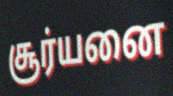
சூர்யனை